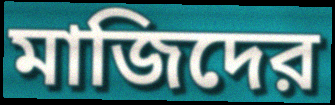
মাজিদের